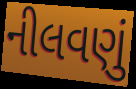
નીલવણું